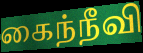
கைந்நீவி